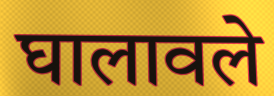
घालावले